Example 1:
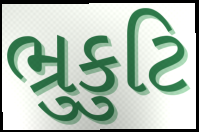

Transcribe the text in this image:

ભ્રુકુટિ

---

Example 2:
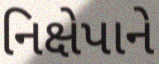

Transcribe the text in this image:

નિક્ષેપાને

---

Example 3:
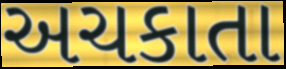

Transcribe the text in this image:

અચકાતા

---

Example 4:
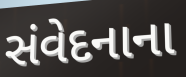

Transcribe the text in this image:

સંવેદનાના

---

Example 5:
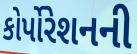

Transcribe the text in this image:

કોર્પોરેશનની